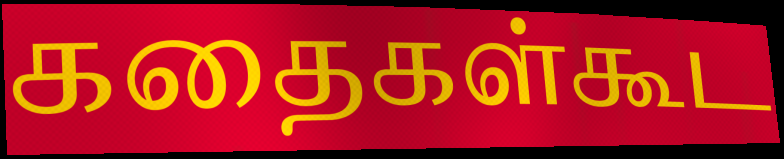
கதைகள்கூட